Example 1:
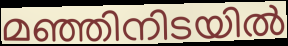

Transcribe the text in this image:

മഞ്ഞിനിടയിൽ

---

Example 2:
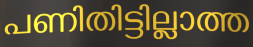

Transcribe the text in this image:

പണിതിട്ടില്ലാത്ത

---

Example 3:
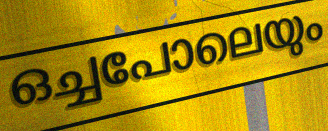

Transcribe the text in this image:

ഒച്ചപോലെയും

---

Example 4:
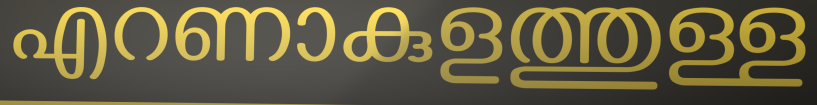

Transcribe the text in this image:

എറണാകുളത്തുള്ള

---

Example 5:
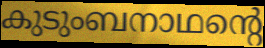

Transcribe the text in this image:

കുടുംബനാഥന്റെ